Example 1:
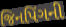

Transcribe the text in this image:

જિનપિંગની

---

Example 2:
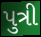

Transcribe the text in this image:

પુત્રી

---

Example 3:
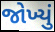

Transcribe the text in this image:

જોખ્યું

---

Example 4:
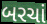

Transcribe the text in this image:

બરચાં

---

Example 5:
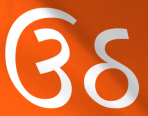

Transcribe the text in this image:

ઉઠ